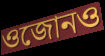
ওজোনও